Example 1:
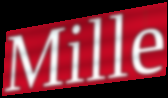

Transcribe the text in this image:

Mille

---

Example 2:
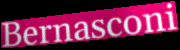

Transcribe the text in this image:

Bernasconi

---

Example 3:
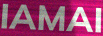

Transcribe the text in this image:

IAMAI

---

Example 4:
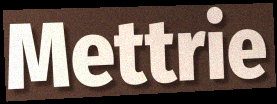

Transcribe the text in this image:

Mettrie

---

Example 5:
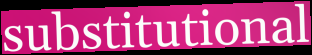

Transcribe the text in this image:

substitutional